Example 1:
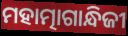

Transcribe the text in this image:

ମହାତ୍ମାଗାନ୍ଧିଜୀ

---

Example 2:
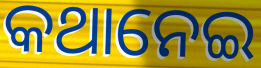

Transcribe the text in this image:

କଥାନେଇ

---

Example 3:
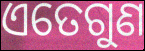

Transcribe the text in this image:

ଏତେଗୁଣ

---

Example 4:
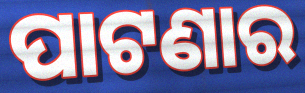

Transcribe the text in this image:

ପାଟଣାର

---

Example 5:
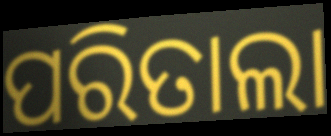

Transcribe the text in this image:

ପରିତାଲା